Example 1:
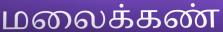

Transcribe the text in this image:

மலைக்கண்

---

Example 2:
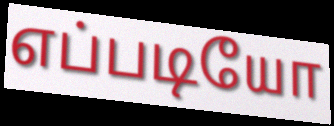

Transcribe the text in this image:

எப்படியோ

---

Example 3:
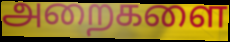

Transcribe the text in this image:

அறைகளை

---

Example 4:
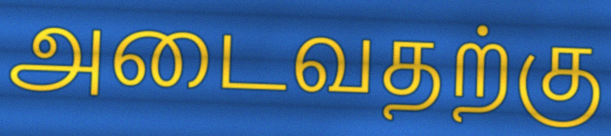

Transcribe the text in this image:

அடைவதற்கு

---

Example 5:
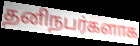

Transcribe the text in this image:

தனிநபர்களாக